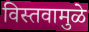
विस्तवामुळे